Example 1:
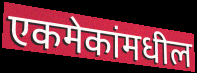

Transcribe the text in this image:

एकमेकांमधील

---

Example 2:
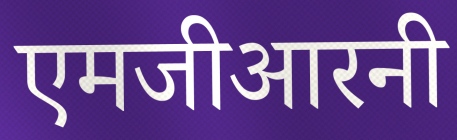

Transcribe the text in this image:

एमजीआरनी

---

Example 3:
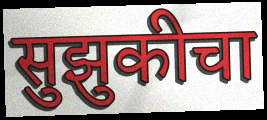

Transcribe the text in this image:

सुझुकीचा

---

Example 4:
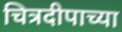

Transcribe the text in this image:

चित्रदीपाच्या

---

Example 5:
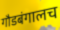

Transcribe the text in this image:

गौडबंगालच